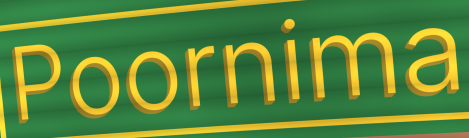
Poornima